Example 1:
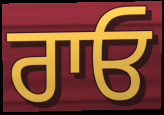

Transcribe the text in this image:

ਰਾਓ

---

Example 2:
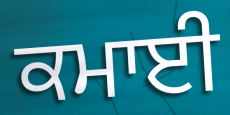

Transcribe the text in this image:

ਕਮਾਈ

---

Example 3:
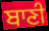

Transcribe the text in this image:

ਬਾਣੀ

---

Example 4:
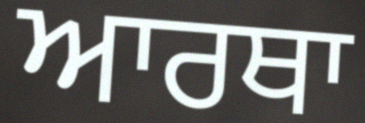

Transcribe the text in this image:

ਆਰਥਾ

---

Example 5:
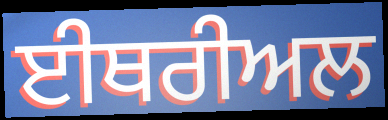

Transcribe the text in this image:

ਈਥਰੀਅਲ